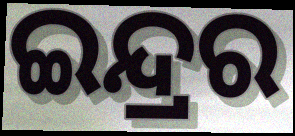
ଇନ୍ଦ୍ରର